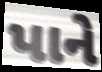
પાને